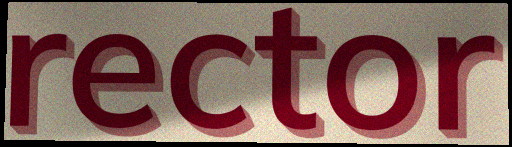
rector